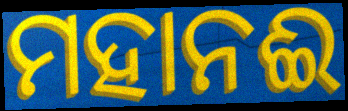
ମହାନଈ